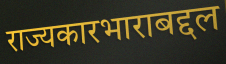
राज्यकारभाराबद्दल